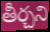
తీర్చని